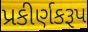
પ્રકીર્ણકરૂપ